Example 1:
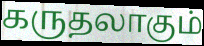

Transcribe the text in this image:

கருதலாகும்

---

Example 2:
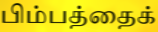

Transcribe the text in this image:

பிம்பத்தைக்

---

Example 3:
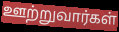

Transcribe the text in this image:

ஊற்றுவார்கள்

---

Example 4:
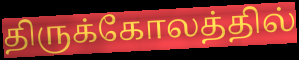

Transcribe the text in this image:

திருக்கோலத்தில்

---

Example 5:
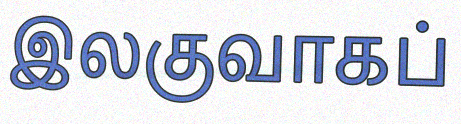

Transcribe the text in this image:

இலகுவாகப்